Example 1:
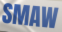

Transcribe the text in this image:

SMAW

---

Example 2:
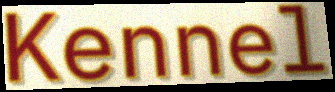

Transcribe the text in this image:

Kennel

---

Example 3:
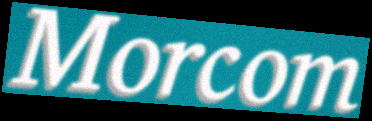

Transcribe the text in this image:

Morcom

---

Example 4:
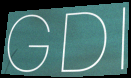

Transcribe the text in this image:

GDI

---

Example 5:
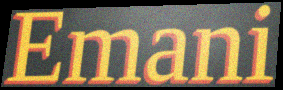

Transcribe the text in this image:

Emani